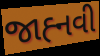
જાહ્‍નવી